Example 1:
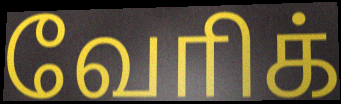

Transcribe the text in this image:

வேரிக்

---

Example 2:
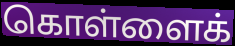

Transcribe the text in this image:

கொள்ளைக்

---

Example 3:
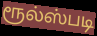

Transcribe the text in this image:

ரூல்ஸ்படி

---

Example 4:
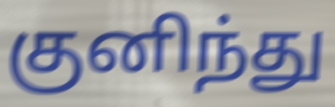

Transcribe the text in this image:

குனிந்து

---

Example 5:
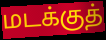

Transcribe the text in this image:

மடக்குத்